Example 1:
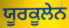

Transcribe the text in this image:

ਯੂਰਕੂਲੇਨ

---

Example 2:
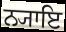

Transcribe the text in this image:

ਨ੍ਯਾਇ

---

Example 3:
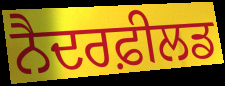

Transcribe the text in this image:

ਨੈਦਰਫ਼ੀਲਡ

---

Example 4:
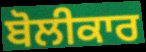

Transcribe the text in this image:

ਬੋਲੀਕਾਰ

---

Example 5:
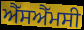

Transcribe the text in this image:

ਐੱਸਐੱਮਸੀ